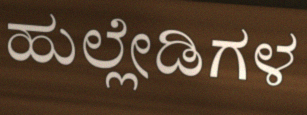
ಹುಲ್ಲೇಡಿಗಳ